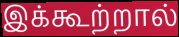
இக்கூற்றால்